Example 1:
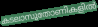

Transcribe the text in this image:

കടലാസുതോണികളിൽ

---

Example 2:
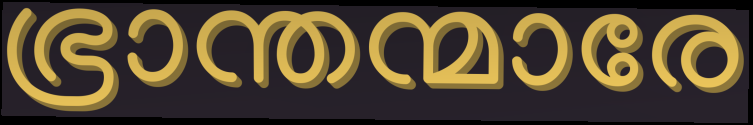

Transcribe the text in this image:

ഭ്രാന്തന്മാരേ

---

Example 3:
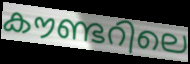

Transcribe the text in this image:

കൗണ്ടറിലെ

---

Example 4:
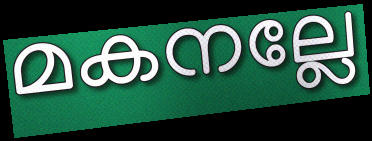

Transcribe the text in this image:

മകനല്ലേ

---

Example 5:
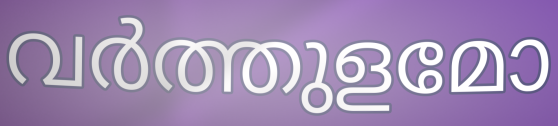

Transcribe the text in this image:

വർത്തുളമോ